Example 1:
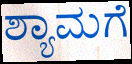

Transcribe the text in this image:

ಶ್ಯಾಮಗೆ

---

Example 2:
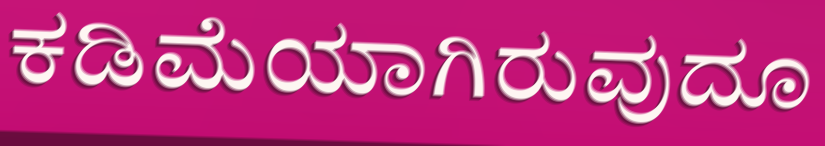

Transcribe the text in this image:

ಕಡಿಮೆಯಾಗಿರುವುದೂ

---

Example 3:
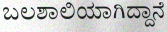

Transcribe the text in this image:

ಬಲಶಾಲಿಯಾಗಿದ್ದಾನೆ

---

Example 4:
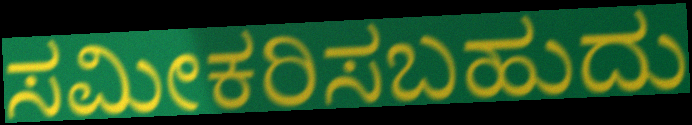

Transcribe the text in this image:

ಸಮೀಕರಿಸಬಹುದು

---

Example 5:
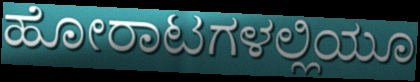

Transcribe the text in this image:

ಹೋರಾಟಗಳಲ್ಲಿಯೂ